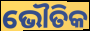
ଭୌତିକ